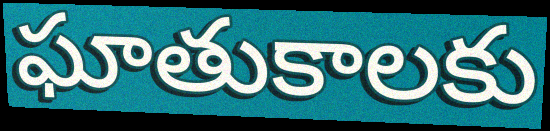
ఘాతుకాలకు